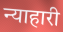
न्याहारी